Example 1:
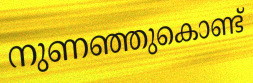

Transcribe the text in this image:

നുണഞ്ഞുകൊണ്ട്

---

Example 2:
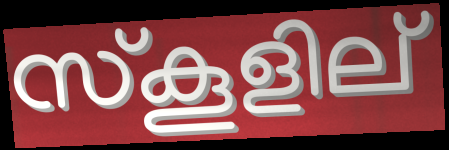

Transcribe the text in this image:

സ്കൂളില്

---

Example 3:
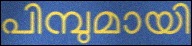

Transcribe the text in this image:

പിമ്പുമായി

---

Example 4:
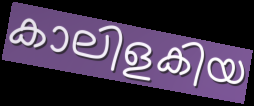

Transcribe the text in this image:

കാലിളകിയ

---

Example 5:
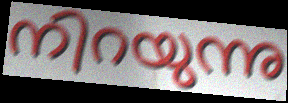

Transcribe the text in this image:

നിറയുന്നു